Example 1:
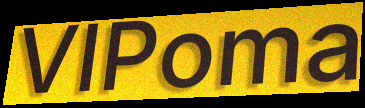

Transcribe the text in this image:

VIPoma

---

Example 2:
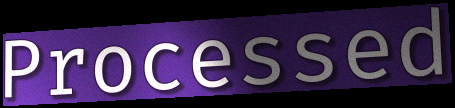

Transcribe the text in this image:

Processed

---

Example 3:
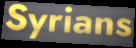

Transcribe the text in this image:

Syrians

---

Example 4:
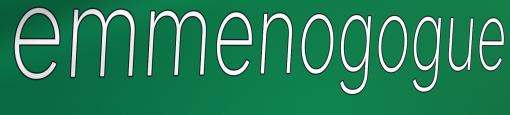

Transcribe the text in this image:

emmenogogue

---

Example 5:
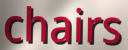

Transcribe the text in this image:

chairs